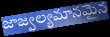
జాజ్వల్యమానమైన